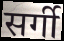
सर्गी